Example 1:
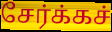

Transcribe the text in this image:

சேர்க்கச்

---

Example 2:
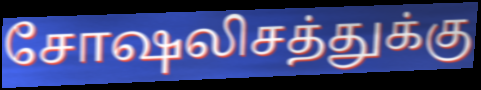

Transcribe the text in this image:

சோஷலிசத்துக்கு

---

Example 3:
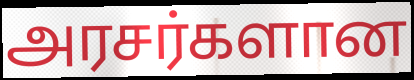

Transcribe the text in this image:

அரசர்களான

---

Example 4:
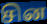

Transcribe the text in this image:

சின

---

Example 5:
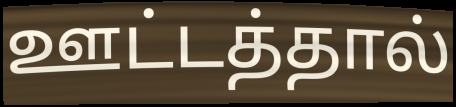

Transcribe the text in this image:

ஊட்டத்தால்